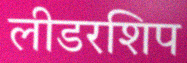
लीडरशिप